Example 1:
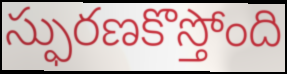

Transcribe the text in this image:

స్ఫురణకొస్తోంది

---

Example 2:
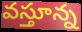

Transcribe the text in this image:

వస్తూన్న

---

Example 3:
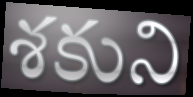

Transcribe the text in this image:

శకుని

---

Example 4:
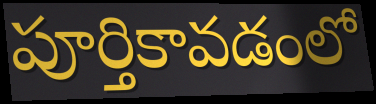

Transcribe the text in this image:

పూర్తికావడంలో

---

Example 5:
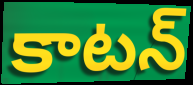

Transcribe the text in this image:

కాటన్